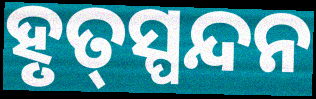
ହୃତ୍‌ସ୍ପନ୍ଦନ